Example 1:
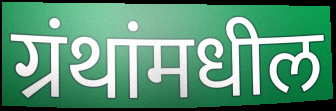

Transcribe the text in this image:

ग्रंथांमधील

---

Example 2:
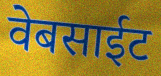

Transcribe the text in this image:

वेबसाईट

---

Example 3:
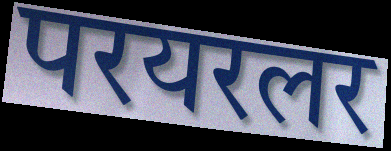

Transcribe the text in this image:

परयरलर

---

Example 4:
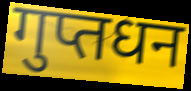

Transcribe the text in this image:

गुप्तधन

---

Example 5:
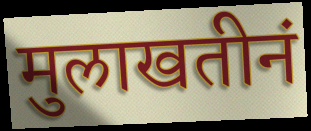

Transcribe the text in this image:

मुलाखतीनं